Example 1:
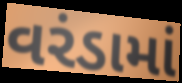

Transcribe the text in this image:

વરંડામાં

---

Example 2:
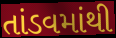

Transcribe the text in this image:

તાંડવમાંથી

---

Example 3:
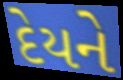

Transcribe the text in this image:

દેયને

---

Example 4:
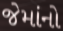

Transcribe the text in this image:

જેમાંનો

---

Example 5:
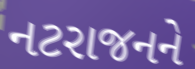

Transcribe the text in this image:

નટરાજનને